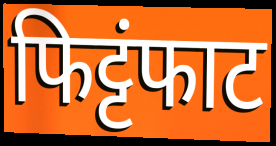
फिट्टंफाट